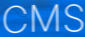
CMS